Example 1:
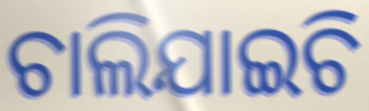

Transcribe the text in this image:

ଚାଲିଯାଇଚି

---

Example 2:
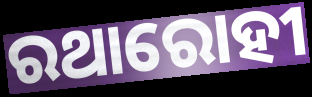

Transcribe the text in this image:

ରଥାରୋହୀ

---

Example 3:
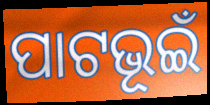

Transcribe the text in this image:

ପାଟଭୂଇଁ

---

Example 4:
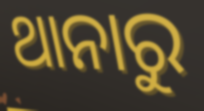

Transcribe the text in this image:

ଥାନାରୁ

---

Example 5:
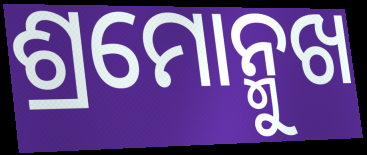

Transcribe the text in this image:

ଶ୍ରମୋନ୍ମୁଖ